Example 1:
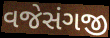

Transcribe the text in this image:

વજેસંગજી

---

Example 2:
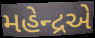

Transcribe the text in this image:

મહેન્દ્રએ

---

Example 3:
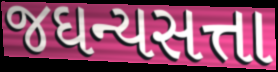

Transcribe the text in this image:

જઘન્યસત્તા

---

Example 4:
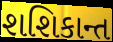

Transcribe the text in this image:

શશિકાન્ત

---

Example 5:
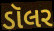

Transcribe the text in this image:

ડૉલર